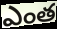
ఎంత